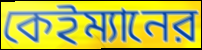
কেইম্যানের